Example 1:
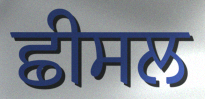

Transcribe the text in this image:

ਛੀਸਲ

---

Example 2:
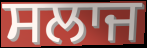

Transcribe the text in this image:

ਸਲਾਜ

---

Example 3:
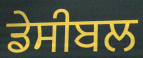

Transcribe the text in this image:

ਡੇਸੀਬਲ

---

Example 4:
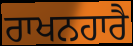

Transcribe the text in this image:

ਰਾਖਨਹਾਰੈ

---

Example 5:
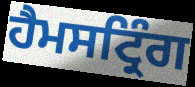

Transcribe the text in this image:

ਹੈਮਸਟ੍ਰਿੰਗ